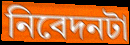
নিবেদনটা